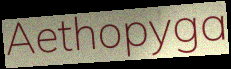
Aethopyga